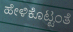
ಹೇಳಿಕೊಟ್ಟಂತೆ